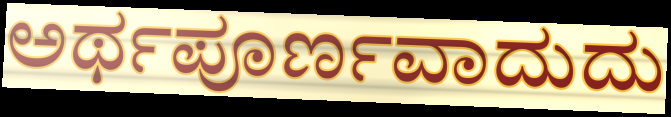
ಅರ್ಥಪೂರ್ಣವಾದುದು